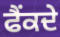
ਫੈਂਕਦੇ